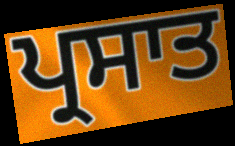
ਪ੍ਰਸਾਤ